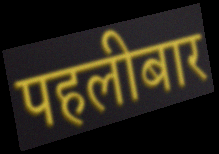
पहलीबार